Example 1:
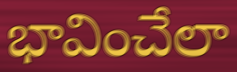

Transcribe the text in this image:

భావించేలా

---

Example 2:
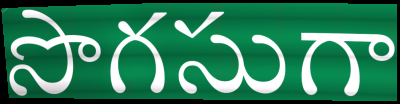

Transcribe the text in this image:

సొగసుగా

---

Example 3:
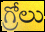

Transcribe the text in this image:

గ్రోలు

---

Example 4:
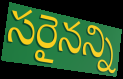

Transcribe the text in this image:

సరైనన్ని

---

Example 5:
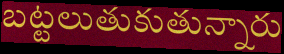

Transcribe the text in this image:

బట్టలుతుకుతున్నారు